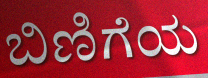
ಬಿಣಿಗೆಯ